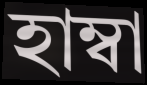
হাম্বা